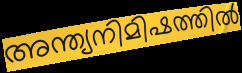
അന്ത്യനിമിഷത്തിൽ